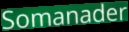
Somanader